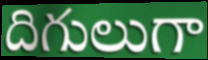
దిగులుగా